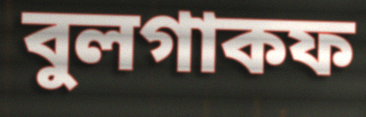
বুলগাকফ